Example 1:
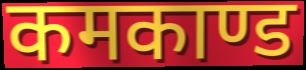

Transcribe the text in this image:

कमकाण्ड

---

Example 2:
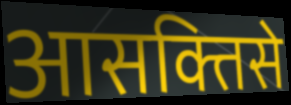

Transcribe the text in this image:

आसक्तिसे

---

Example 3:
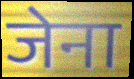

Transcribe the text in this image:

जेना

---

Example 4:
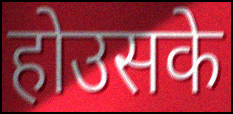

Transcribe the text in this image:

होउसके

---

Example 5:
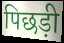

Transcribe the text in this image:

पिछड़ी